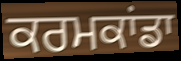
ਕਰਮਕਾਂਡਾ